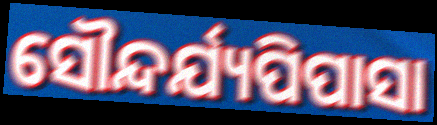
ସୌନ୍ଦର୍ଯ୍ୟପିପାସା